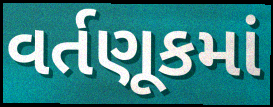
વર્તણૂકમાં